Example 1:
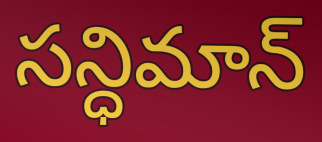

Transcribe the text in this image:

సన్ధిమాన్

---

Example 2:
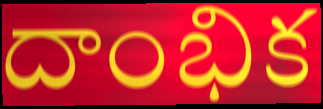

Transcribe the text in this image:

దాంభిక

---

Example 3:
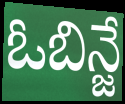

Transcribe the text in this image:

ఓబిన్జే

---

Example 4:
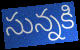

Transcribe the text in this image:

సున్నకి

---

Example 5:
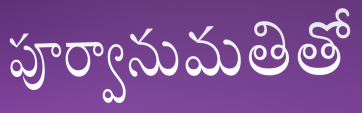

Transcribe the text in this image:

పూర్వానుమతితో